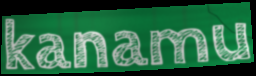
kanamu